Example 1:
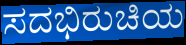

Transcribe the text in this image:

ಸದಭಿರುಚಿಯ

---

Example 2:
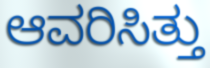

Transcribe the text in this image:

ಆವರಿಸಿತ್ತು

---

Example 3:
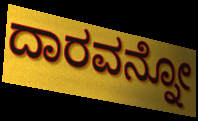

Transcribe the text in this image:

ದಾರವನ್ನೋ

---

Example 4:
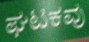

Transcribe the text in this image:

ಘಟಕವು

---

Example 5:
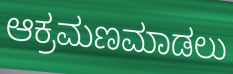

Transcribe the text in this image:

ಆಕ್ರಮಣಮಾಡಲು